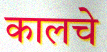
कालचे